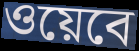
ওয়েবে